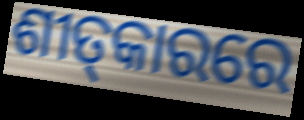
ଶୀତ୍‌କାରରେ